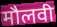
मौलवी